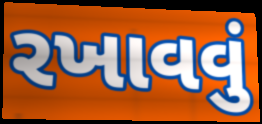
રખાવવું